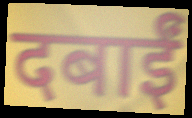
दबाईं